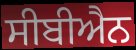
ਸੀਬੀਐਨ